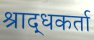
श्राद्धकर्ता